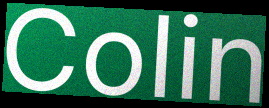
Colin